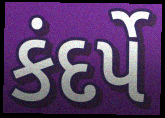
કંદર્પે